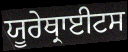
ਯੂਰੇਥ੍ਰਾਈਟਸ